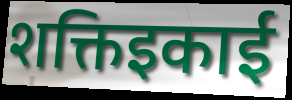
शक्तिइकाई